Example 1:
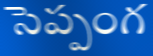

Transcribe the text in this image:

సెప్పంగ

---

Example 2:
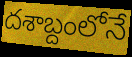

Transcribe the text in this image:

దశాబ్దంలోనే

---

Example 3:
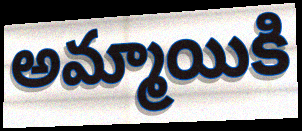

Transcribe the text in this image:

అమ్మాయికి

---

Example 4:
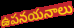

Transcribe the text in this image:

ఉపనయనాలు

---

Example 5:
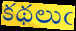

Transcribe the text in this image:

కథలుఁ